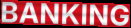
BANKING